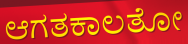
ಆಗತಕಾಲತೋ